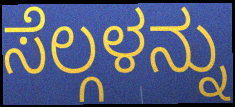
ಸೆಲ್ಗಳನ್ನು